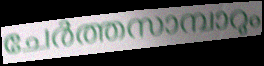
ചേർത്തസാമ്പാറും